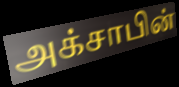
அக்சாபின்